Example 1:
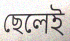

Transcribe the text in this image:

ছেলেই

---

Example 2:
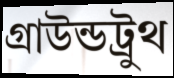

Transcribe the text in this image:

গ্রাউন্ডট্রুথ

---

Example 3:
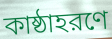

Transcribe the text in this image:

কাষ্ঠাহরণে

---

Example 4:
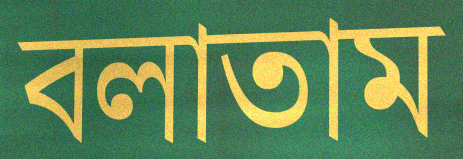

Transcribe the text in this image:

বলাতাম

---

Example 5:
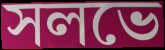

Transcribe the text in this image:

সলভে